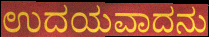
ಉದಯವಾದನು